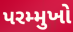
પરમ્મુખો